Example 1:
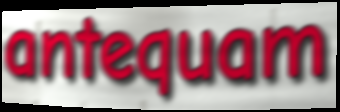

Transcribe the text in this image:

antequam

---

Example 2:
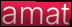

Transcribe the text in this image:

amat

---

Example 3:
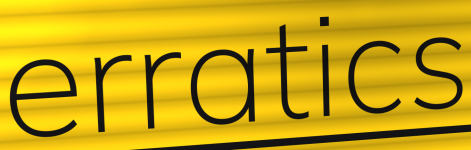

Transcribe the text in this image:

erratics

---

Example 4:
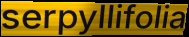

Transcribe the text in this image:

serpyllifolia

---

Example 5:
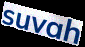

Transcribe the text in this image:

suvah